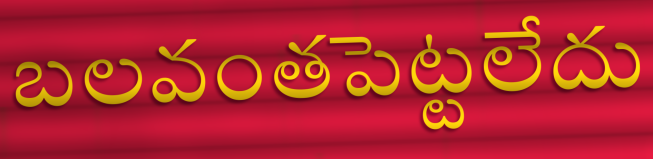
బలవంతపెట్టలేదు